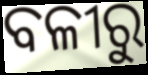
ବଳୀରୁ